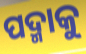
ପଦ୍ମାକୁ